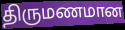
திருமணமான